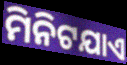
ମିନିଟଯାଏ